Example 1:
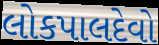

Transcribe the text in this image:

લોકપાલદેવો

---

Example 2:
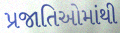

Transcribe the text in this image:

પ્રજાતિઓમાંથી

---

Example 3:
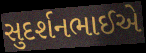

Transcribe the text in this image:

સુદર્શનભાઈએ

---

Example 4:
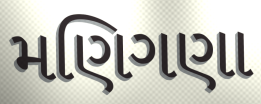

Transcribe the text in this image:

મણિગણા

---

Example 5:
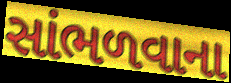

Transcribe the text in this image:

સાંભળવાના